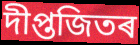
দীপ্তজিতৰ